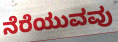
ನೆರೆಯುವವು